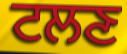
ਟਲਣ